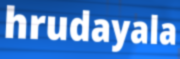
hrudayala